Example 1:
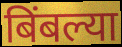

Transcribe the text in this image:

बिंबल्या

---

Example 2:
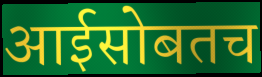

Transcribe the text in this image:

आईसोबतच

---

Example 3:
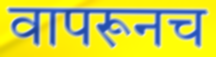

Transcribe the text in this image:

वापरूनच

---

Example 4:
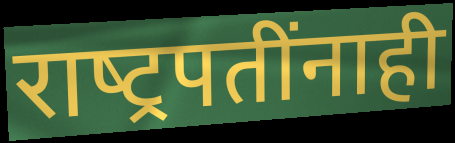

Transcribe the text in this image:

राष्ट्रपतींनाही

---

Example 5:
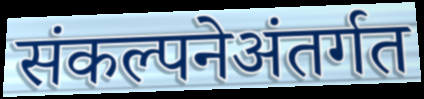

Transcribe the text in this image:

संकल्पनेअंतर्गत